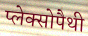
प्लेक्सोपैथी